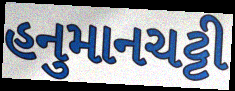
હનુમાનચટ્ટી